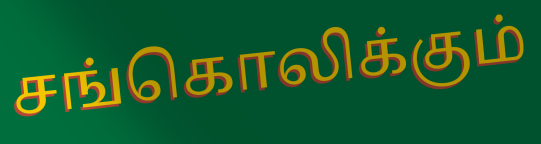
சங்கொலிக்கும்